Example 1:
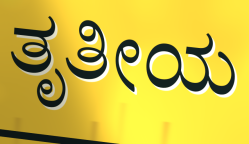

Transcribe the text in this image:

ತೃತೀಯ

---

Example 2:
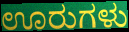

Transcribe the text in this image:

ಊರುಗಳು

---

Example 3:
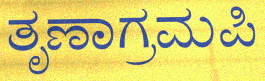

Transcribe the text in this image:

ತೃಣಾಗ್ರಮಪಿ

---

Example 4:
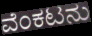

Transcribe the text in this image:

ವೆಂಕಟನು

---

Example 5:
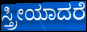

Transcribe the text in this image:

ಸ್ತ್ರೀಯಾದರೆ